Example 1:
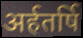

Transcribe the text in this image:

अर्हतर्षि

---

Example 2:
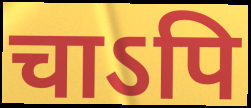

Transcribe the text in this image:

चाऽपि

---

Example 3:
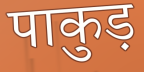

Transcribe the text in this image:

पाकुड़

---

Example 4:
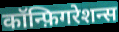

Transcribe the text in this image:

कॉन्फ़िगरेशन्स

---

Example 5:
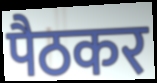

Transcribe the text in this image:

पैठकर